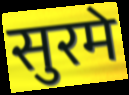
सुरमे